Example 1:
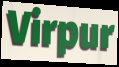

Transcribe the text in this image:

Virpur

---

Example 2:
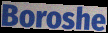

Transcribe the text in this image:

Boroshe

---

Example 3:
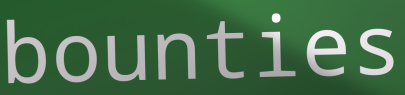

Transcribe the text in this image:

bounties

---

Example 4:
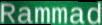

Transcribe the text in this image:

Rammad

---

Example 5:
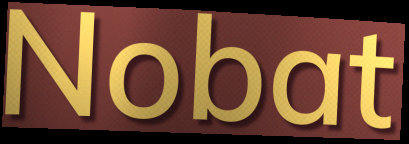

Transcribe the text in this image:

Nobat